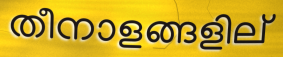
തീനാളങ്ങളില്